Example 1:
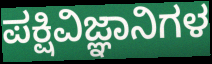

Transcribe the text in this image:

ಪಕ್ಷಿವಿಜ್ಞಾನಿಗಳ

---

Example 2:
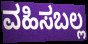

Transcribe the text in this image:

ವಹಿಸಬಲ್ಲ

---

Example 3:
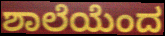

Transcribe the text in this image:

ಶಾಲೆಯೆಂದ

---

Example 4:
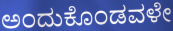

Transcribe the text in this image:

ಅಂದುಕೊಂಡವಳೇ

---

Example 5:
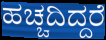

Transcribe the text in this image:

ಹಚ್ಚದಿದ್ದರೆ